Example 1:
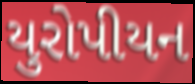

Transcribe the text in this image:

યુરોપીયન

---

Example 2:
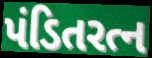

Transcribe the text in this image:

પંડિતરત્ન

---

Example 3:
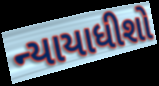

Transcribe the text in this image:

ન્યાયાધીશો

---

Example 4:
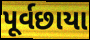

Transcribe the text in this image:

પૂર્વછાયા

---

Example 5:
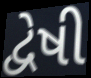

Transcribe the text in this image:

દ્વેષી